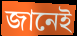
জানেই